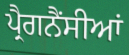
ਪ੍ਰੈਗਨੈਂਸੀਆਂ